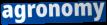
agronomy